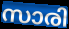
സാരി